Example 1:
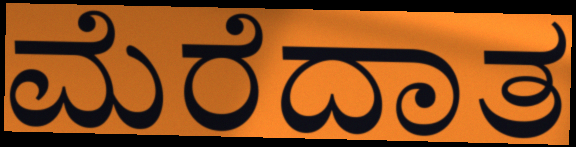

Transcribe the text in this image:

ಮೆರೆದಾತ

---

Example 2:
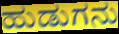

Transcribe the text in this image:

ಹುಡುಗನು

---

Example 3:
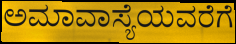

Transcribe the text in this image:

ಅಮಾವಾಸ್ಯೆಯವರೆಗೆ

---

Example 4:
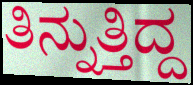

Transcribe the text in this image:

ತಿನ್ನುತ್ತಿದ್ದ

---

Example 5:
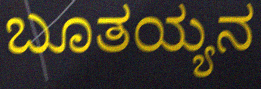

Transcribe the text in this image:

ಬೂತಯ್ಯನ